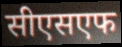
सीएसएफ